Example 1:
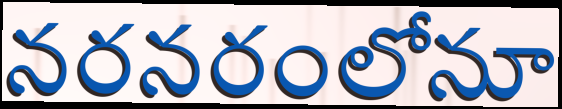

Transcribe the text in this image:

నరనరంలోనూ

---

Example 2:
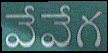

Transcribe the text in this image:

వేవేగ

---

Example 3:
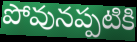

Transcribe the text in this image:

పోవునప్పటికి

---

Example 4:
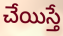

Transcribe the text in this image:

చేయిస్తే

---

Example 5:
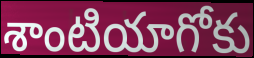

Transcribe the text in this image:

శాంటియాగోకు